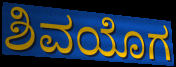
ಶಿವಯೊಗ